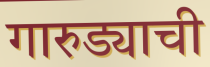
गारुड्याची